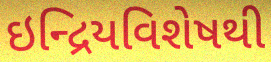
ઇન્દ્રિયવિશેષથી